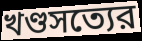
খণ্ডসত্যের